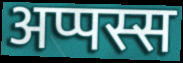
अप्पस्स